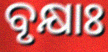
ବୃକ୍ଷାଃ